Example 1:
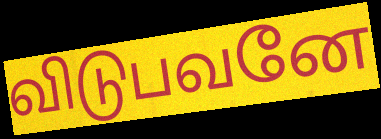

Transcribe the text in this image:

விடுபவனே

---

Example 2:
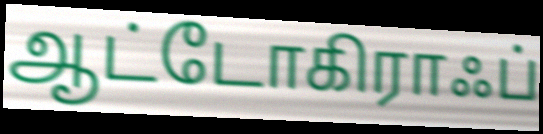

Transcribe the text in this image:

ஆட்டோகிராஃப்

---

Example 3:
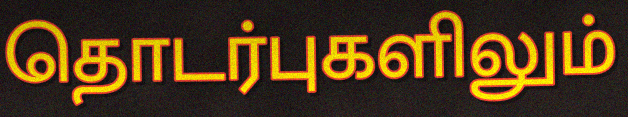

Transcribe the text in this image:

தொடர்புகளிலும்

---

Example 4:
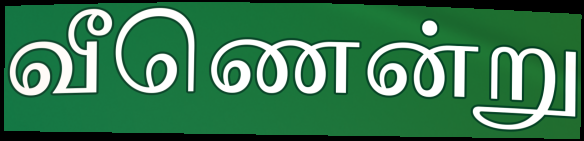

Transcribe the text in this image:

வீணென்று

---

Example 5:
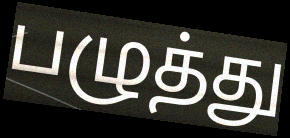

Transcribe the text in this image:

பழுத்து